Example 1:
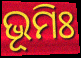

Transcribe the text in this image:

ଭୂମିଃ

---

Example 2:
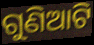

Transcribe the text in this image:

ଗୁଣିଆଟି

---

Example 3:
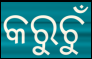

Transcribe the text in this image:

କରୁଚୁଁ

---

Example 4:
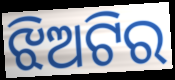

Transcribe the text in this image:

ଝିଅଟିର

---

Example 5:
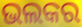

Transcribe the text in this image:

ଭଲକର